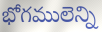
భోగములెన్ని